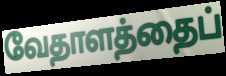
வேதாளத்தைப்